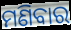
ମଣିବାର